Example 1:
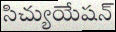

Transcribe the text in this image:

సిచ్యుయేషన్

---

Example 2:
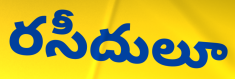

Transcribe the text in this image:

రసీదులూ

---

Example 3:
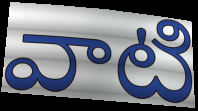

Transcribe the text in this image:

వాటి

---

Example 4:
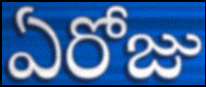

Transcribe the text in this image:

ఏరోజు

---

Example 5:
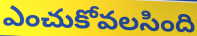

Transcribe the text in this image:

ఎంచుకోవలసింది